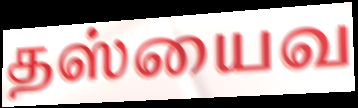
தஸ்யைவ